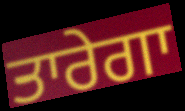
ਤਾਰੇਗਾ